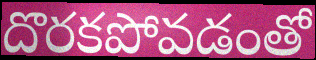
దొరకపోవడంతో